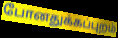
போனதுக்கப்புறம்